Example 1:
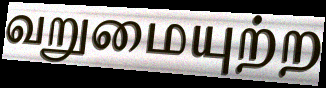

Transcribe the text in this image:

வறுமையுற்ற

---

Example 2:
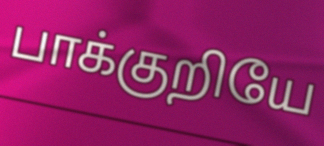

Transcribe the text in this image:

பாக்குறியே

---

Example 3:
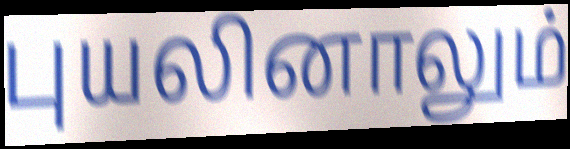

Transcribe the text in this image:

புயலினாலும்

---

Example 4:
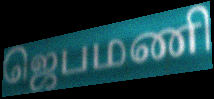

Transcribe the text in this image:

ஜெபமணி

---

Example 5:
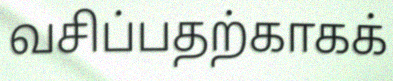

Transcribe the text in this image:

வசிப்பதற்காகக்